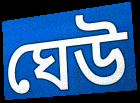
ঘেউ